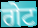
ਗੇਟ